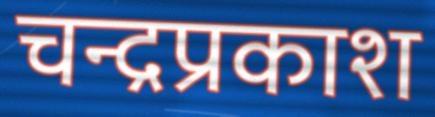
चन्द्रप्रकाश